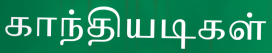
காந்தியடிகள்